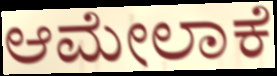
ಆಮೇಲಾಕೆ